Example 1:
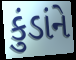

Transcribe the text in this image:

કુંડાંને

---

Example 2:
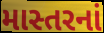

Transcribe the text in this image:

માસ્તરનાં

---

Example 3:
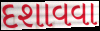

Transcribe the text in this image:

દશાવવા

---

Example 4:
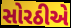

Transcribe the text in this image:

સોરઠીએ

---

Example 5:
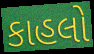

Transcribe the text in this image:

કાહલો